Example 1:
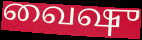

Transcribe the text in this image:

வைஷு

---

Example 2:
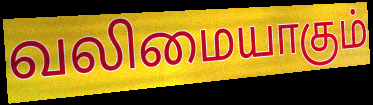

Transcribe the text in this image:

வலிமையாகும்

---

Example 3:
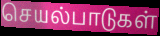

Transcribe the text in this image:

செயல்பாடுகள்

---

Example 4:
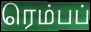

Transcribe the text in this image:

ரெம்பப்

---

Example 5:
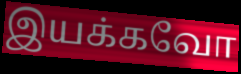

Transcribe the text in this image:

இயக்கவோ